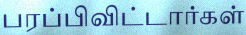
பரப்பிவிட்டார்கள்